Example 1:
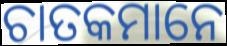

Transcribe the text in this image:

ଚାତକମାନେ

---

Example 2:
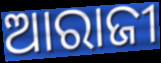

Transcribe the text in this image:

ଆରାଜୀ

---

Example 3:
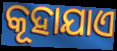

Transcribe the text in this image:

କୂହାଯାଏ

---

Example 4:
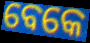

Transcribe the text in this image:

ବେକେ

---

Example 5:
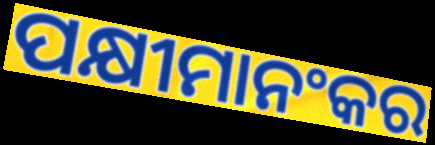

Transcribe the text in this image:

ପକ୍ଷୀମାନଂକର